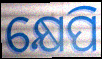
କ୍ଷେପି